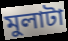
মুলাটা